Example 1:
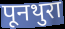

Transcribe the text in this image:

पूनथुरा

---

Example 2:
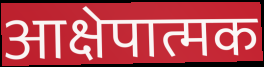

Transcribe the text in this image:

आक्षेपात्मक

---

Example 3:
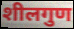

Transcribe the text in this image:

शीलगुण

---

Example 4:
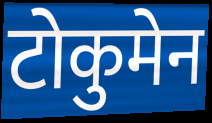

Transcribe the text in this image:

टोकुमेन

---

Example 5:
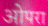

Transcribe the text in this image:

ओपरा